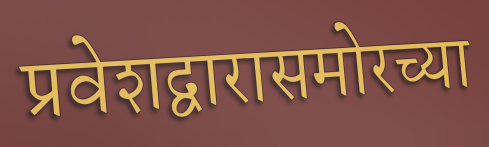
प्रवेशद्वारासमोरच्या